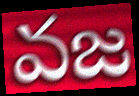
వజ